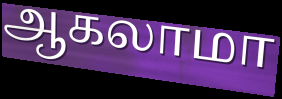
ஆகலாமா